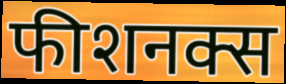
फीशनक्स